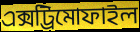
এক্সট্রিমোফাইল